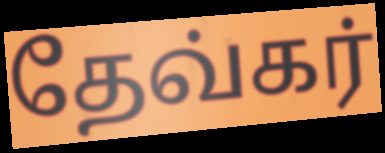
தேவ்கர்